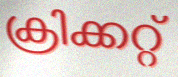
ക്രിക്കറ്റ്